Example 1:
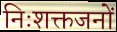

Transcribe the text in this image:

निःशक्तजनों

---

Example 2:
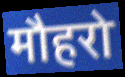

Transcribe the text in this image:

मौहरो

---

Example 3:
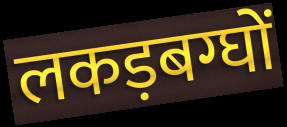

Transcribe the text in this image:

लकड़बग्घों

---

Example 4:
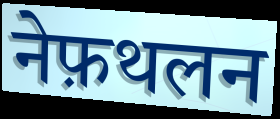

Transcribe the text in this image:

नेफ़थलन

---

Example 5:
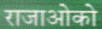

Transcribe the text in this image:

राजाओको